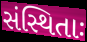
સંસ્થિતાઃ